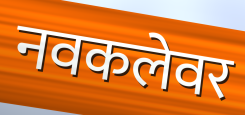
नवकलेवर